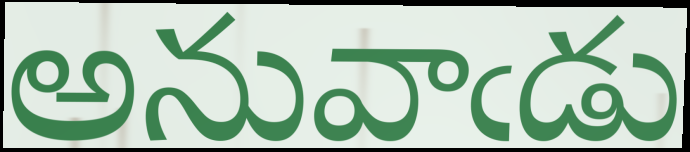
అనువాఁడు